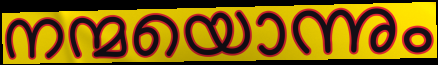
നന്മയൊന്നും